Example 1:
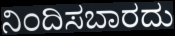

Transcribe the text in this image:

ನಿಂದಿಸಬಾರದು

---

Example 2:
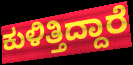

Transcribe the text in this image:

ಕುಳಿತ್ತಿದ್ದಾರೆ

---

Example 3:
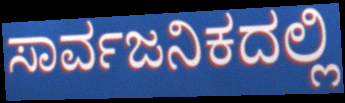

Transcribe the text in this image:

ಸಾರ್ವಜನಿಕದಲ್ಲಿ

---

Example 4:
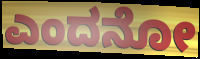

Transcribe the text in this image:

ಎಂದನೋ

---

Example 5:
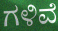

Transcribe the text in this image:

ಗಳಿವೆ